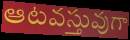
ఆటవస్తువుగా